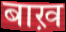
बाख़